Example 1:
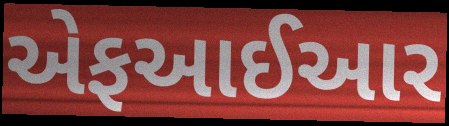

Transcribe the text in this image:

એફઆઈઆર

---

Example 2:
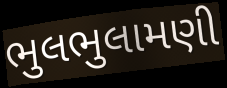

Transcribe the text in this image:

ભુલભુલામણી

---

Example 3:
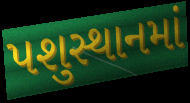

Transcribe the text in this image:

પશુસ્થાનમાં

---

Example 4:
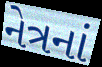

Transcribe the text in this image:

નેત્રનાં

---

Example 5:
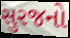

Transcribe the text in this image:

સુરજનો